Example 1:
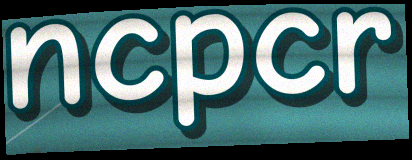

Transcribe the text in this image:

ncpcr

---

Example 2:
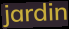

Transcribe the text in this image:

jardin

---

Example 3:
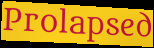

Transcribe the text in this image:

Prolapsed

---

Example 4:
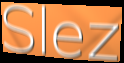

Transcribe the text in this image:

Slez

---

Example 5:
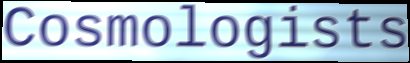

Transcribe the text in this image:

Cosmologists